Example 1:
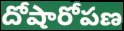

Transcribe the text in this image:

దోషారోపణ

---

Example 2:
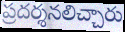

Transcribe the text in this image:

ప్రదర్శనలిచ్చారు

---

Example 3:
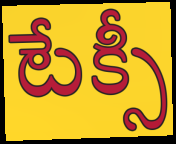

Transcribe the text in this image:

టేక్సీ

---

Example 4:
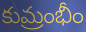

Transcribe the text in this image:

కుమ్రంభీం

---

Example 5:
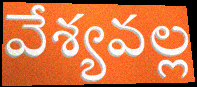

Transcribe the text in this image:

వేశ్యవల్ల